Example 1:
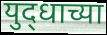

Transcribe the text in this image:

युद्धाच्या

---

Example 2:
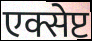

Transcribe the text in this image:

एक्सेप्ट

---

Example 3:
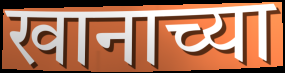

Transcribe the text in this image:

खानाच्या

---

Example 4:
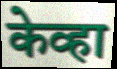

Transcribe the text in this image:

केव्हा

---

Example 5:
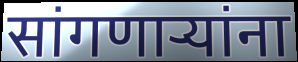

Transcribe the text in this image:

सांगणार्‍यांना